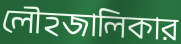
লৌহজালিকার